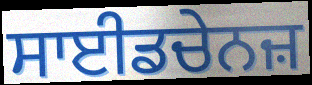
ਸਾਈਡਚੇਨਜ਼